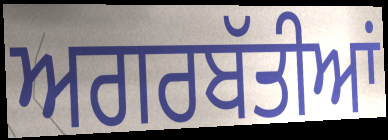
ਅਗਰਬੱਤੀਆਂ